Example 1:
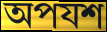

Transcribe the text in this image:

অপযশ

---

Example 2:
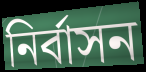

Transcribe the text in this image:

নিৰ্বাসন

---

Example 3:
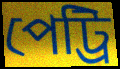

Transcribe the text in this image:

পেট্ৰি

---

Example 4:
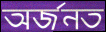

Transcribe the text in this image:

অৰ্জনত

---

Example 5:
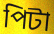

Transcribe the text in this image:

পিটা